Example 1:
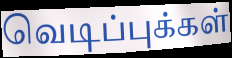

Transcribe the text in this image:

வெடிப்புக்கள்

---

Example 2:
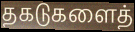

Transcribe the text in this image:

தகடுகளைத்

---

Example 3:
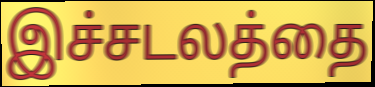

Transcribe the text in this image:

இச்சடலத்தை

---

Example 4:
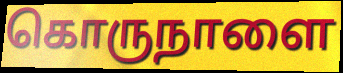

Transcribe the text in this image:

கொருநாளை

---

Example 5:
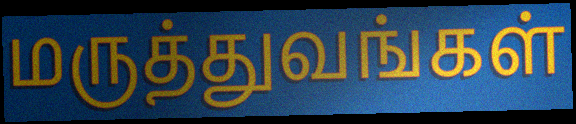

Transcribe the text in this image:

மருத்துவங்கள்